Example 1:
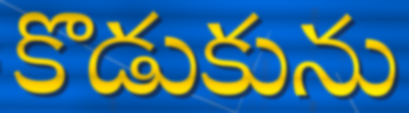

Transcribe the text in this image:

కొడుకును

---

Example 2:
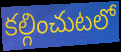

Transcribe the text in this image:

కల్గించుటలో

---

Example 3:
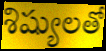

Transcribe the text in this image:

శిష్యులతో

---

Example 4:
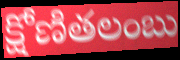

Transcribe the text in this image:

క్షోణితలంబు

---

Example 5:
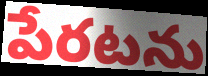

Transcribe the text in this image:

పేరటను